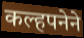
कल्हपनेने